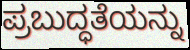
ಪ್ರಬುದ್ಧತೆಯನ್ನು